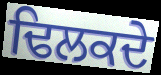
ਢਿਲਕਦੇ